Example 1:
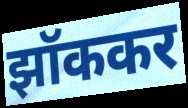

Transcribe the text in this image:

झॉककर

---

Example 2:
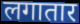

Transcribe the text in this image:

लगातार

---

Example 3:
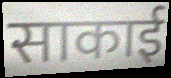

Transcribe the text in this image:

साकाई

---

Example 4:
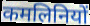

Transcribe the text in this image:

कमलिनियों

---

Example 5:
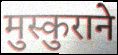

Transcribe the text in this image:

मुस्कुराने